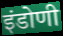
इंडोणी